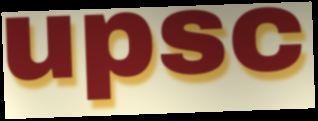
upsc